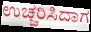
ಉಚ್ಚರಿಸಿದಾಗ